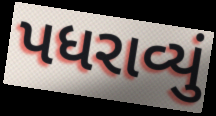
પધરાવ્યું